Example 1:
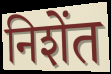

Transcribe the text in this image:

निशेंत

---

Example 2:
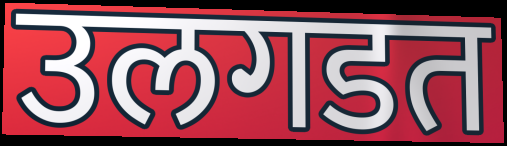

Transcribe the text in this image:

उलगडत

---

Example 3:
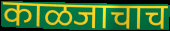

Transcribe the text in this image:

काळजाचाच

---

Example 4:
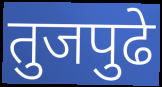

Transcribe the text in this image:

तुजपुढे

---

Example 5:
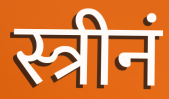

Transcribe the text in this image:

स्त्रीनं